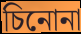
চিনোনা